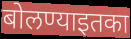
बोलण्याइतका